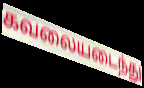
கவலையடைந்து